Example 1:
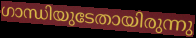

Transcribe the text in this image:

ഗാന്ധിയുടേതായിരുന്നു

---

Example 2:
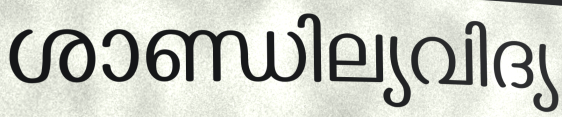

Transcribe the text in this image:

ശാണ്ഡില്യവിദ്യ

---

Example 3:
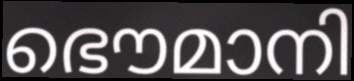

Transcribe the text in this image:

ഭൌമാനി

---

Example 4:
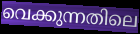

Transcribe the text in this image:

വെക്കുന്നതിലെ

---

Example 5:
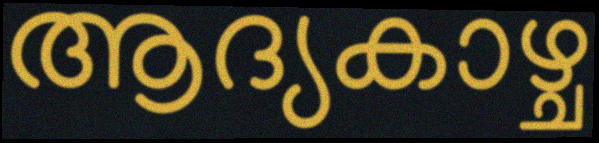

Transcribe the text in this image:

ആദ്യകാഴ്ച